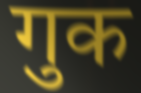
गुक